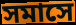
সমাসে